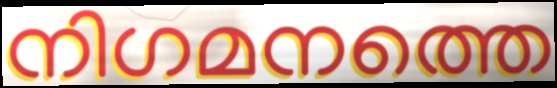
നിഗമനത്തെ